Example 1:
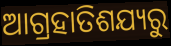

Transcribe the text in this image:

ଆଗ୍ରହାତିଶଯ୍ୟରୁ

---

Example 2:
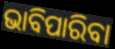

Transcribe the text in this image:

ଭାବିପାରିବା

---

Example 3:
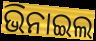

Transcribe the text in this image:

ଭିନାଇଲ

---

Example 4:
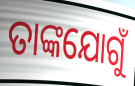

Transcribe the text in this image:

ତାଙ୍କଯୋଗୁଁ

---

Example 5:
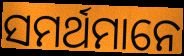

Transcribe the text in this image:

ସମର୍ଥମାନେ